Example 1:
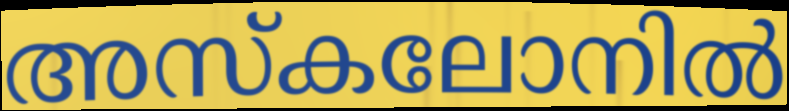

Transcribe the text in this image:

അസ്കലോനിൽ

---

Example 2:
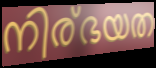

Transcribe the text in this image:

നിര്ഭയത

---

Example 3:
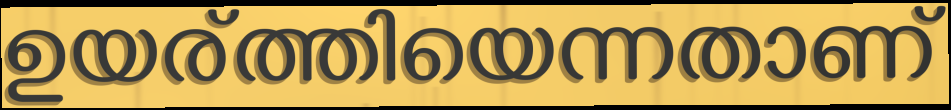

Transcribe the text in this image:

ഉയര്ത്തിയെന്നതാണ്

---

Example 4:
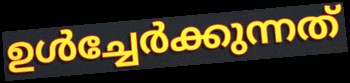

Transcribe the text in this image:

ഉൾച്ചേർക്കുന്നത്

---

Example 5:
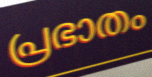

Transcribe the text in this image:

പ്രഭാതം